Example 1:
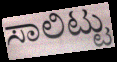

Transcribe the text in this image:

ಸಾಲಿಟ್ಟು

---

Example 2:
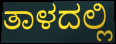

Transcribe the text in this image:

ತಾಳದಲ್ಲಿ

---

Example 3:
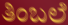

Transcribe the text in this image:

ತಿಂಬಲೆ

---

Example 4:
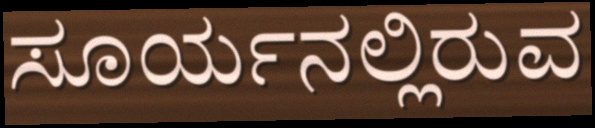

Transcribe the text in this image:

ಸೂರ್ಯನಲ್ಲಿರುವ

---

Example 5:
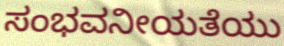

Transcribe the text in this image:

ಸಂಭವನೀಯತೆಯು